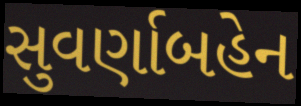
સુવર્ણાબહેન